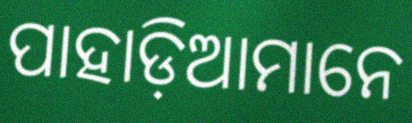
ପାହାଡ଼ିଆମାନେ